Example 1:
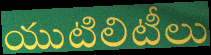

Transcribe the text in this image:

యుటిలిటీలు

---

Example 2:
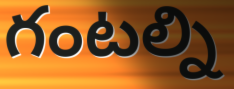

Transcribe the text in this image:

గంటల్ని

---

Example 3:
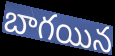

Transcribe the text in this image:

బాగయిన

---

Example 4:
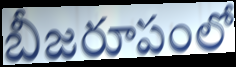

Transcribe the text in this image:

బీజరూపంలో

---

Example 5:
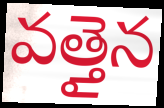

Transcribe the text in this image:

వత్తైన